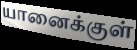
யானைக்குள்